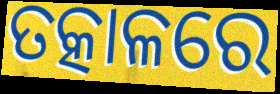
ତତ୍କାଳରେ